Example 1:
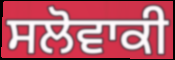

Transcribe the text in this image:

ਸਲੋਵਾਕੀ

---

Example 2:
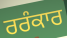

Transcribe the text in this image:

ਰਰੰਕਾਰ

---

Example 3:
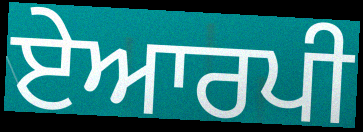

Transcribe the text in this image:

ਏਆਰਪੀ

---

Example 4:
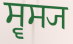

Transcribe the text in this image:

ਸ੍ਵਸ੍ਯ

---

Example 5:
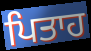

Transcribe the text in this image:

ਪਿਤਾਹ